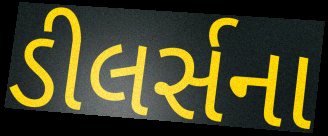
ડીલર્સના